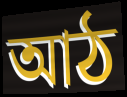
আঠ